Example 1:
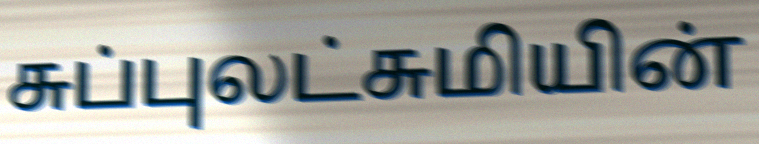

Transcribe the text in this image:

சுப்புலட்சுமியின்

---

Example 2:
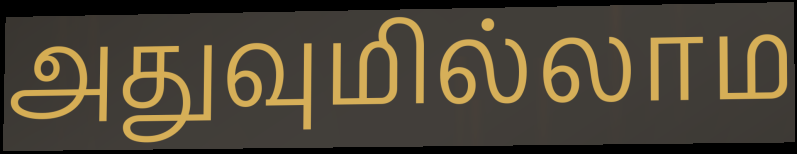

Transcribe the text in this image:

அதுவுமில்லாம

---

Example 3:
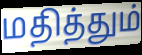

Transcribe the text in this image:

மதித்தும்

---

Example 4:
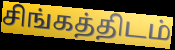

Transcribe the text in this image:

சிங்கத்திடம்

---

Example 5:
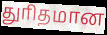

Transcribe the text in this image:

துரிதமான